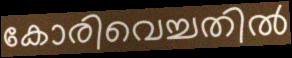
കോരിവെച്ചതിൽ